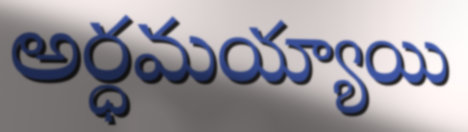
అర్ధమయ్యాయి